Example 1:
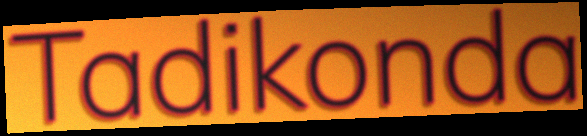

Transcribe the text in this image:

Tadikonda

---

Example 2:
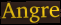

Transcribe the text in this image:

Angre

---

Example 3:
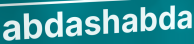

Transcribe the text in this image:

abdashabda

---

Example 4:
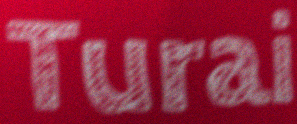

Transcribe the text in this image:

Turai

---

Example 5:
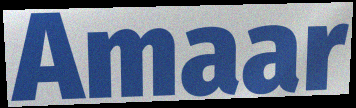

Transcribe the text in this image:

Amaar